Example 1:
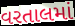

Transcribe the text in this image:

વરતાલમાં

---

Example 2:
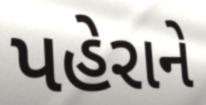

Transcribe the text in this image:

પહેરાને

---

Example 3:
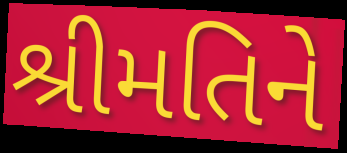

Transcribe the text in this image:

શ્રીમતિને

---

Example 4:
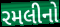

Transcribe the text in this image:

રમલીનો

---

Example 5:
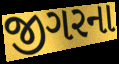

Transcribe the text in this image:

જીગરના